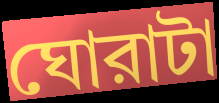
ঘোরাটা